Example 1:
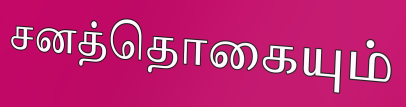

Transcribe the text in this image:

சனத்தொகையும்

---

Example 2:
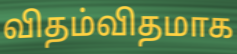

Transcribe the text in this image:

விதம்விதமாக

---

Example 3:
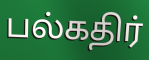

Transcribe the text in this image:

பல்கதிர்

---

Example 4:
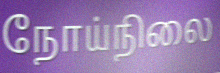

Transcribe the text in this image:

நோய்நிலை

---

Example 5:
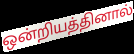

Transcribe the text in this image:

ஒன்றியத்தினால்